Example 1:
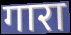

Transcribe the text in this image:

गारा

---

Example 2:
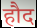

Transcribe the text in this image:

हौद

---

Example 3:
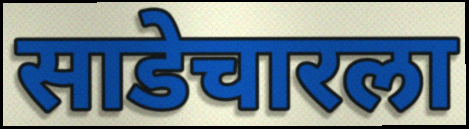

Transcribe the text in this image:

साडेचारला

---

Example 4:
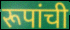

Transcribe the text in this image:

रूपांची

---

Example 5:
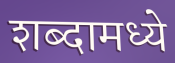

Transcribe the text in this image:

शब्दामध्ये